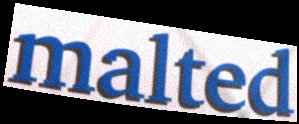
malted